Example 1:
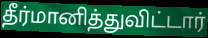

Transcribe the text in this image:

தீர்மானித்துவிட்டார்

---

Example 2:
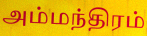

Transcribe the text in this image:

அம்மந்திரம்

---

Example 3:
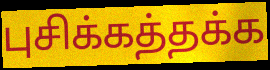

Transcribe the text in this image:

புசிக்கத்தக்க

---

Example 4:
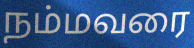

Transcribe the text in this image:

நம்மவரை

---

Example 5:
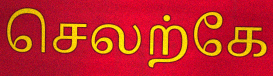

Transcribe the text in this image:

செலற்கே